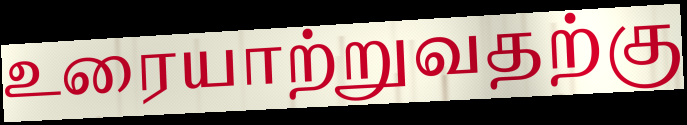
உரையாற்றுவதற்கு